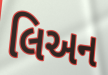
લિઅન